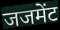
जजमेंट